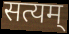
सत्यम्